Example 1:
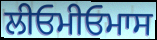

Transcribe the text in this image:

ਲੀਓਮੀਓਮਾਸ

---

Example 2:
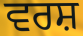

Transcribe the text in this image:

ਵਰਸ਼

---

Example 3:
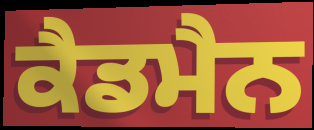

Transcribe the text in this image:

ਕੈਡਮੈਨ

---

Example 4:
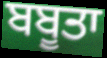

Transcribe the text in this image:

ਬਬੂਤਾ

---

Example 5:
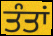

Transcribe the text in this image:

ਤੰਤਾਂ